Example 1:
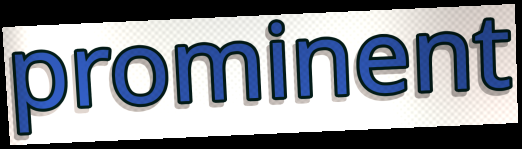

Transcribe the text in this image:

prominent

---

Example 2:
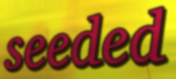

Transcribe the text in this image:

seeded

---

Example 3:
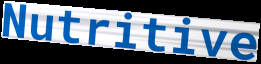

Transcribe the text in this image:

Nutritive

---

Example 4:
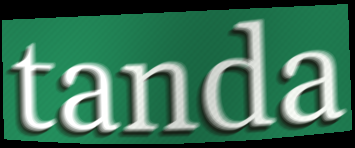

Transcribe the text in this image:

tanda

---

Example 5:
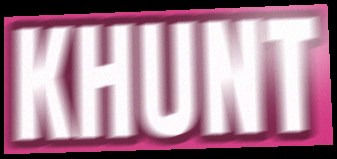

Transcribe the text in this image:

KHUNT